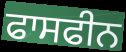
ਫਾਸਫੀਨ